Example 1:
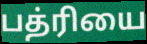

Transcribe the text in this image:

பத்ரியை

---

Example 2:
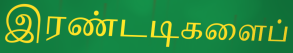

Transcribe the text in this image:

இரண்டடிகளைப்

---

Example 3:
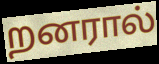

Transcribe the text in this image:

றனரால்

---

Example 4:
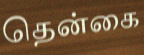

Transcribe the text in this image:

தென்கை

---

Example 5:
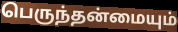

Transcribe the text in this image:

பெருந்தன்மையும்